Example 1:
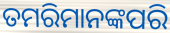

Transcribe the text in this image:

ତମରିମାନଙ୍କପରି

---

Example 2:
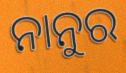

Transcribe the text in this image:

ନାନୁର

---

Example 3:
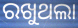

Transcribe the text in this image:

ରଖୁଥଲା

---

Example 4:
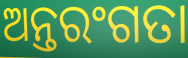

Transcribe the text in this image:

ଅନ୍ତରଂଗତା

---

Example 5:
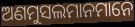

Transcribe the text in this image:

ଅଣମୁସଲମାନମାନେ